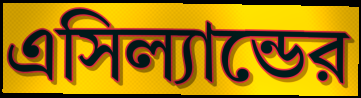
এসিল্যান্ডের